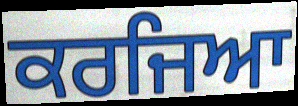
ਕਰਜਿਆ